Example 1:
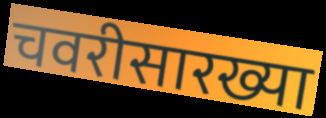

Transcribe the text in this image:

चवरीसारख्या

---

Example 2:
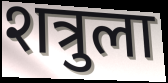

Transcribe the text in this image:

शत्रुला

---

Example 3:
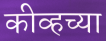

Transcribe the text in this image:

कीव्हच्या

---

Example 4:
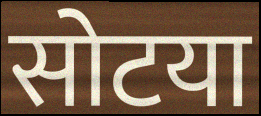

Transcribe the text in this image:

सोटया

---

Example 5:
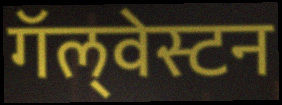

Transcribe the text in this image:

गॅल्वेस्टन